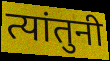
त्यांतुनी